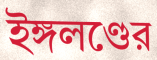
ইঙ্গলণ্ডের